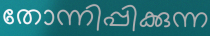
തോന്നിപ്പിക്കുന്ന